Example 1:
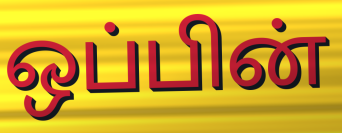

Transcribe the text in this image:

ஒப்பின்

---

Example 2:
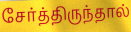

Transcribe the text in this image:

சேர்த்திருந்தால்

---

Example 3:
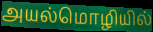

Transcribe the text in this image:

அயல்மொழியில்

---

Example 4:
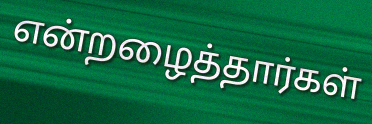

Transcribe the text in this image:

என்றழைத்தார்கள்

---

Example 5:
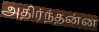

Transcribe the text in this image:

அதிர்ந்தன்ன